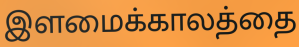
இளமைக்காலத்தை